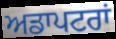
ਅਡਾਪਟਰਾਂ